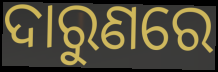
ଦାରୁଣରେ